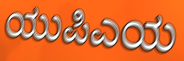
ಯುಪಿಎಯ